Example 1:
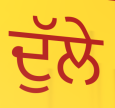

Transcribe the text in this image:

ਦੁੱਲੇ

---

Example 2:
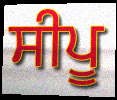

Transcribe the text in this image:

ਸੀਪੂ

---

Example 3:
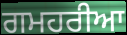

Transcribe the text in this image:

ਗਮਹਰੀਆ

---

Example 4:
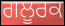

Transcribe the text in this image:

ਗਲੂਰਕ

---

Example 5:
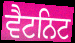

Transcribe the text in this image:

ਵੈਟਨਿਟ